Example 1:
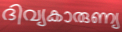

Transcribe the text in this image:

ദിവ്യകാരുണ്യ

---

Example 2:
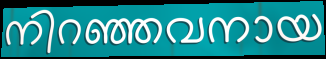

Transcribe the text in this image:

നിറഞ്ഞവനായ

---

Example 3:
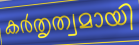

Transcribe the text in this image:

കർതൃത്വമായി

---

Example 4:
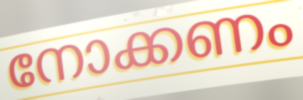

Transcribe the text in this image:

നോക്കണം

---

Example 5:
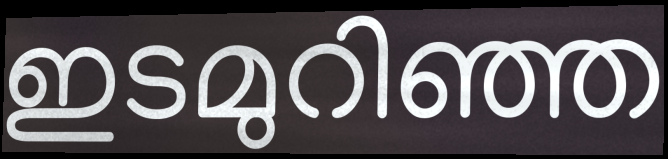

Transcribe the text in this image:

ഇടമുറിഞ്ഞ